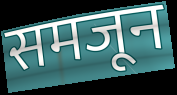
समजून